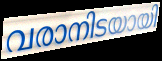
വരാനിടയായി